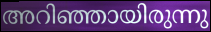
അറിഞ്ഞായിരുന്നു